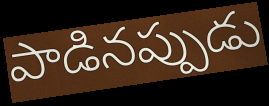
పాడినప్పుడు